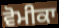
ਵੋਮੀਕਾ